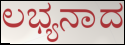
ಲಭ್ಯನಾದ